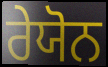
ਰੇਯੋਨ